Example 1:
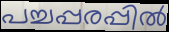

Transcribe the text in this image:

പച്ചപ്പരപ്പിൽ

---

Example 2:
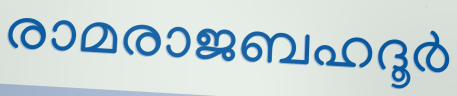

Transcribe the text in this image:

രാമരാജബഹദൂർ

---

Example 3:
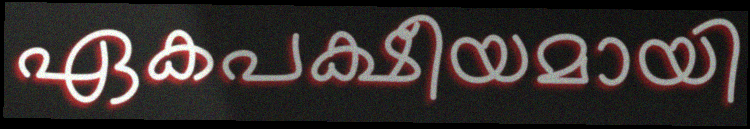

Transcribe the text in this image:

ഏകപക്ഷീയമായി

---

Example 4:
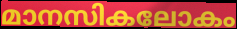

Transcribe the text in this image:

മാനസികലോകം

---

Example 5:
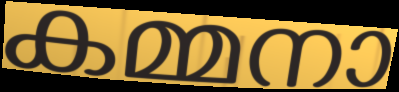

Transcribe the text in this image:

കമ്മനാ